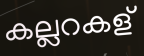
കല്ലറകള്